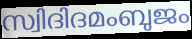
സ്വിദിദമംബുജം